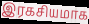
இரகசியமாக